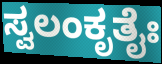
ಸ್ವಲಂಕೃತೈಃ